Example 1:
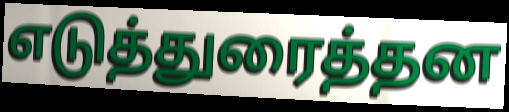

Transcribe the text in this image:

எடுத்துரைத்தன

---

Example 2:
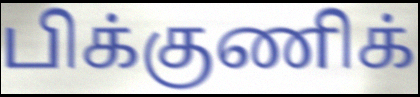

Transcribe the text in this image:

பிக்குணிக்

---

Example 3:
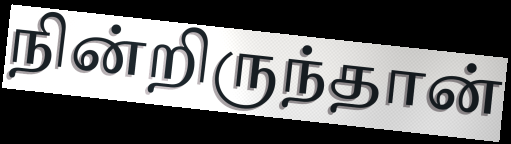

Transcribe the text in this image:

நின்றிருந்தான்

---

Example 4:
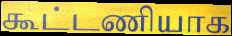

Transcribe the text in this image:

கூட்டணியாக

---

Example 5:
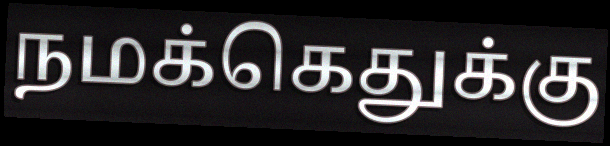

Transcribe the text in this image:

நமக்கெதுக்கு